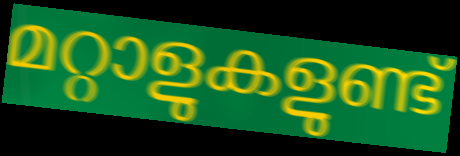
മറ്റാളുകളുണ്ട്